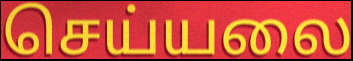
செய்யலை